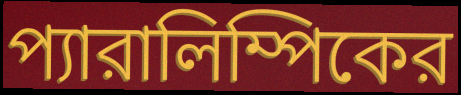
প্যারালিম্পিকের